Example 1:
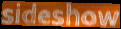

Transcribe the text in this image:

sideshow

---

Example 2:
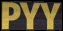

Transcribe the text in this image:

PYY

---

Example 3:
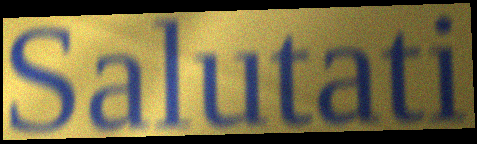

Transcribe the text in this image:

Salutati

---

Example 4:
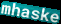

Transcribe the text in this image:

mhaske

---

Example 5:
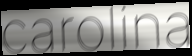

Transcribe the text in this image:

carolina